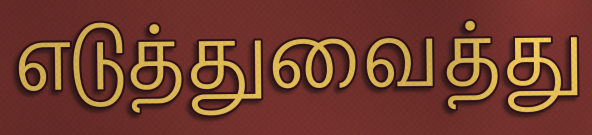
எடுத்துவைத்து